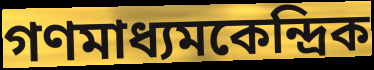
গণমাধ্যমকেন্দ্রিক